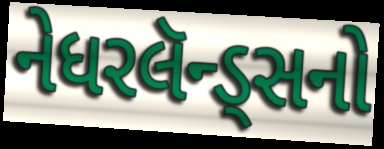
નેધરલૅન્ડ્સનો